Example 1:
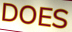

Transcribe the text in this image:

DOES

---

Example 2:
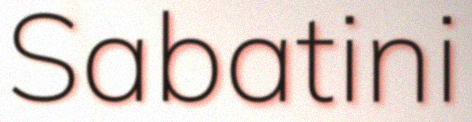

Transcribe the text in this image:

Sabatini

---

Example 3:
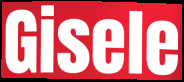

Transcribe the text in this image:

Gisele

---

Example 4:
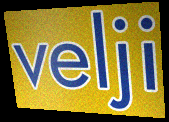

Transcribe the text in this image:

velji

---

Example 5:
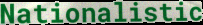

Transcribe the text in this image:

Nationalistic